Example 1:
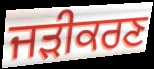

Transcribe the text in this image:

ਜੜੀਕਰਣ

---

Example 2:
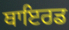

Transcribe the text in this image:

ਥਾਇਰਡ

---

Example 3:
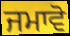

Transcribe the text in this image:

ਜਮਾਵੋ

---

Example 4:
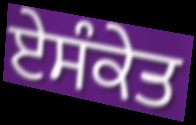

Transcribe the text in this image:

ਏਸੰਕੇਤ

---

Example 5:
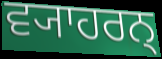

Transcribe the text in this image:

ਵ੍ਯਾਹਰਨ੍